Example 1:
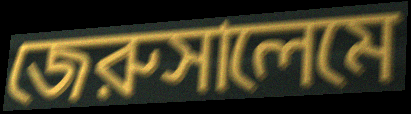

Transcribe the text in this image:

জেরুসালেমে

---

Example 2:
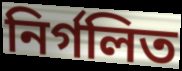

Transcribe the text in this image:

নির্গলিত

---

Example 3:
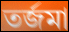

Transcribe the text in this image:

তর্জমা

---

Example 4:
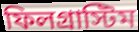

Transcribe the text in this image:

ফিলগ্রাস্টিম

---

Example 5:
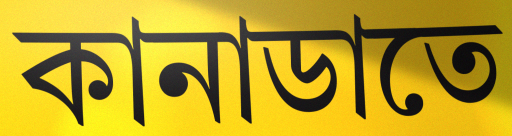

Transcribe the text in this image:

কানাডাতে